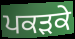
ਪਕੜਕੇ